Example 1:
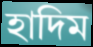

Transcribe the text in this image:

হাদিম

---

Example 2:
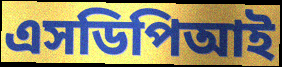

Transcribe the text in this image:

এসডিপিআই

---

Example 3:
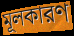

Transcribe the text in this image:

মূলকারণ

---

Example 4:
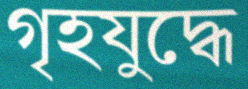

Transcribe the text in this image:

গৃহযুদ্ধে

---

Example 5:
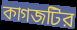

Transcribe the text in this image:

কাগজটির